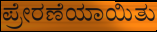
ಪ್ರೇರಣೆಯಾಯಿತು